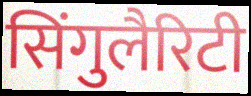
सिंगुलैरिटी